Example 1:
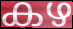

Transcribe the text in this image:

കഴ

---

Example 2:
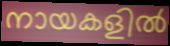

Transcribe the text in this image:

നായകളിൽ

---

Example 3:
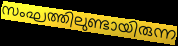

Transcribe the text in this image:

സംഘത്തിലുണ്ടായിരുന്ന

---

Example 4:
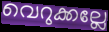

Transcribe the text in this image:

വെറുക്കല്ലേ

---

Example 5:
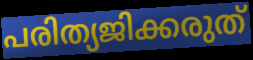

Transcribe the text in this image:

പരിത്യജിക്കരുത്